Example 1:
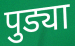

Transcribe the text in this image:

पुड्या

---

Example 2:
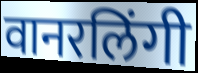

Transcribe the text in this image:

वानरलिंगी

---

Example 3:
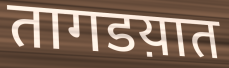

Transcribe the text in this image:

तागडय़ात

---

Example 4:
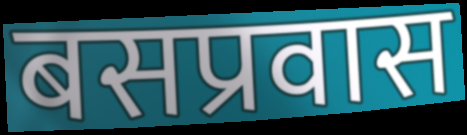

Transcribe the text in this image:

बसप्रवास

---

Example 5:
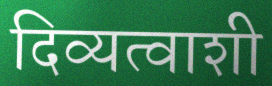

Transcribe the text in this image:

दिव्यत्वाशी